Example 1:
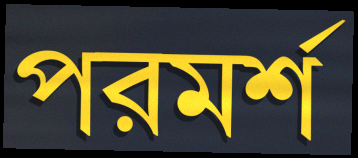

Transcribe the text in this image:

পরমর্শ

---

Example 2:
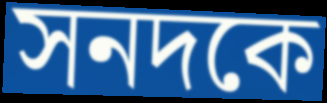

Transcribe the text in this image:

সনদকে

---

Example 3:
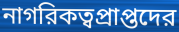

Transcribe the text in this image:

নাগরিকত্বপ্রাপ্তদের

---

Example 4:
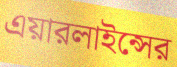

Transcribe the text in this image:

এয়ারলাইন্সের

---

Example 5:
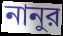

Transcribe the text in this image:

নানুর